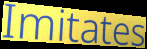
Imitates